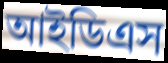
আইডিএস